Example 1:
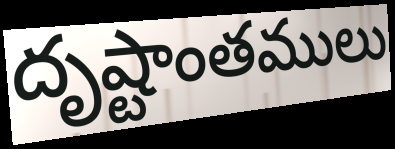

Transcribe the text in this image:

దృష్టాంతములు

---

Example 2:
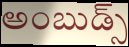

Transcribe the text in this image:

అంబుడ్స్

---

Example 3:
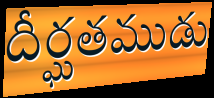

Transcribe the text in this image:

దీర్ఘతముడు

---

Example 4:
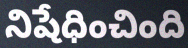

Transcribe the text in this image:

నిషేధించింది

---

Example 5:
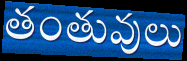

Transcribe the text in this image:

తంతువులు